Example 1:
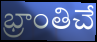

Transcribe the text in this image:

భ్రాంతిచే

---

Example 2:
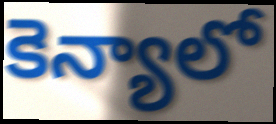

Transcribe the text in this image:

కెన్యాలో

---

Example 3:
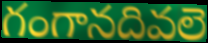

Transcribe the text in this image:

గంగానదివలె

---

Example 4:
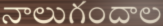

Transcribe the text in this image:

నాలుగందాల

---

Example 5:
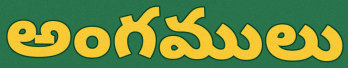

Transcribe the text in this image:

అంగములు